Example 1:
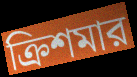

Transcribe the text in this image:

ক্রিশমার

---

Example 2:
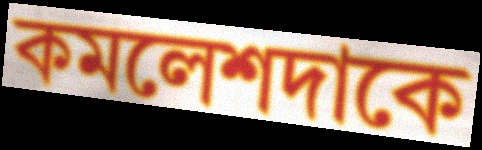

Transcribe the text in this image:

কমলেশদাকে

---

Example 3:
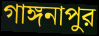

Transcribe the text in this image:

গাঙ্গনাপুর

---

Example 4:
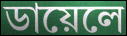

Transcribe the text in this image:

ডায়েলে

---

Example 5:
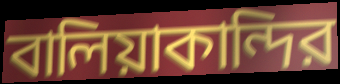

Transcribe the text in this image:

বালিয়াকান্দির